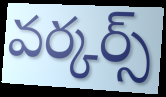
వర్కర్స్